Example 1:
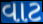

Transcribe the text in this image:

વાટ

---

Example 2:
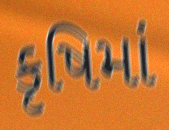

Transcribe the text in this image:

કૃષિમાં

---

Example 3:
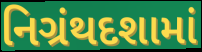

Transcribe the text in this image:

નિગ્રંથદશામાં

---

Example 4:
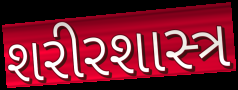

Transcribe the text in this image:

શરીરશાસ્ત્ર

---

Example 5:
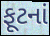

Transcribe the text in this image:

ફૂટનાં